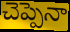
చెప్పెనా